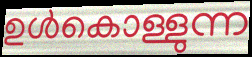
ഉൾകൊള്ളുന്ന